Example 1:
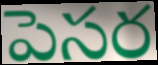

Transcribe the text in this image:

పెసర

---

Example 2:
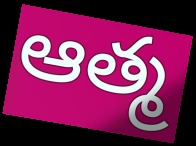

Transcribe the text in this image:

ఆత్మ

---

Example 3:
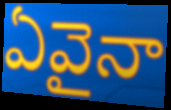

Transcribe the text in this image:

ఏవైనా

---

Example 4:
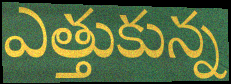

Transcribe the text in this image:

ఎత్తుకున్న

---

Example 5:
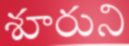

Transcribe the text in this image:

శూరుని